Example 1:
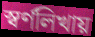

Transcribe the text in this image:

স্বর্ণলিখায়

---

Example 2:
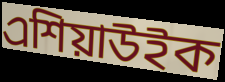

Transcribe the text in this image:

এশিয়াউইক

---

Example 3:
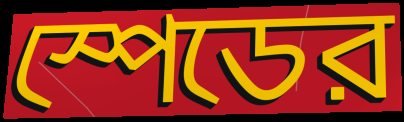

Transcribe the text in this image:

স্পেডের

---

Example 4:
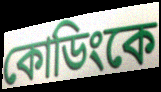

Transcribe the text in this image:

কোডিংকে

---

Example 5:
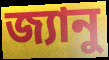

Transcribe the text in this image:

জ্যানু